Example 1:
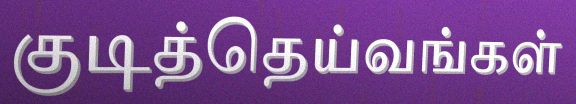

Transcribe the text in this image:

குடித்தெய்வங்கள்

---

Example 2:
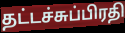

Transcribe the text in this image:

தட்டச்சுப்பிரதி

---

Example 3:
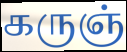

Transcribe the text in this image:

கருஞ்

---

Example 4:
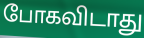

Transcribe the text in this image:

போகவிடாது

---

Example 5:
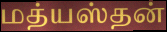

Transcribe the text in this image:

மத்யஸ்தன்